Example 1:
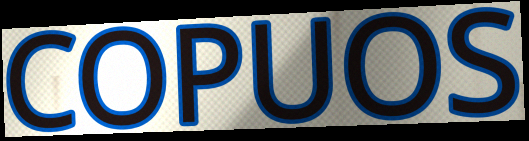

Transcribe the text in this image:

COPUOS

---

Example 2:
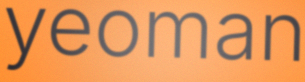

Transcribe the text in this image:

yeoman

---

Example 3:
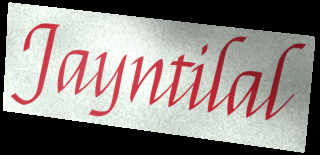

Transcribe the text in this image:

Jayntilal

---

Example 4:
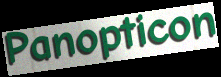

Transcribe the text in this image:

Panopticon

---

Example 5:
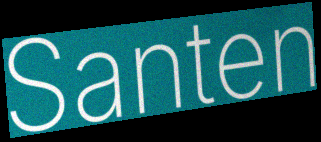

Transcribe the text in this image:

Santen